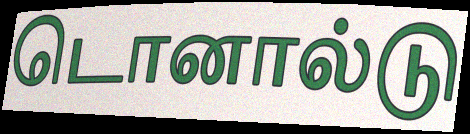
டொனால்டு